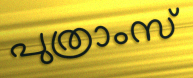
പുത്രാംസ്